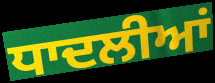
ਧਾਦਲੀਆਂ